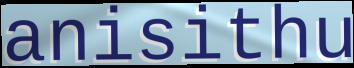
anisithu